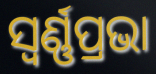
ସ୍ୱର୍ଣ୍ଣପ୍ରଭା